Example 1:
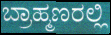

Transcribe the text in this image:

ಬ್ರಾಹ್ಮಣರಲ್ಲಿ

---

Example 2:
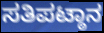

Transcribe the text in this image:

ಸತಿಪಟ್ಠಾನ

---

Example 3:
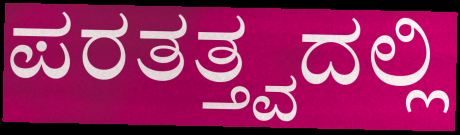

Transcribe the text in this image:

ಪರತತ್ತ್ವದಲ್ಲಿ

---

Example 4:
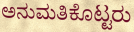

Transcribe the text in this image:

ಅನುಮತಿಕೊಟ್ಟರು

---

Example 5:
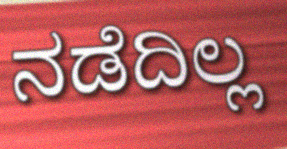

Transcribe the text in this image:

ನಡೆದಿಲ್ಲ